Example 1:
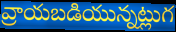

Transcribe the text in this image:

వ్రాయబడియున్నట్లుగ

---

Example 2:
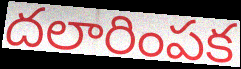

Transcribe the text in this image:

దలారింపక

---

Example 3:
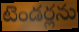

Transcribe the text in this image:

టెండర్లను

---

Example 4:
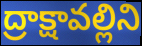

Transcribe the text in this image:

ద్రాక్షావల్లిని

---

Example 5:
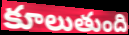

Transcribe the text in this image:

కూలుతుంది